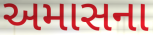
અમાસના